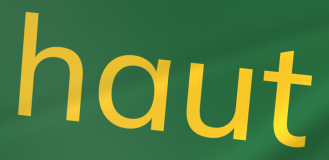
haut